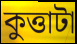
কুত্তাটা